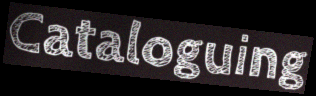
Cataloguing